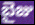
బైజు